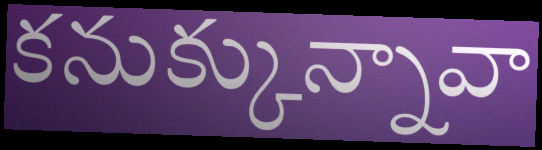
కనుక్కున్నావా